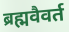
ब्रह्मवैवर्त